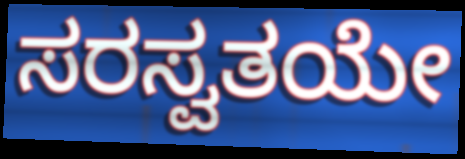
ಸರಸ್ವತಯೇ